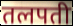
तलपती